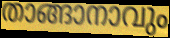
താങ്ങാനാവും